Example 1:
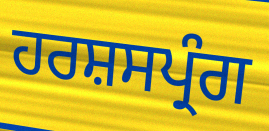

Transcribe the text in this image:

ਹਰਸ਼ਸਪ੍ਰੰਗ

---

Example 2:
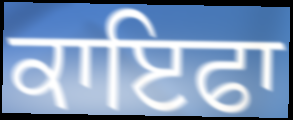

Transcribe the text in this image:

ਕਾਇਫਾ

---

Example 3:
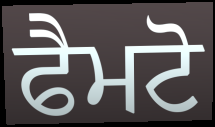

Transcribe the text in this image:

ਫੈਮਟੋ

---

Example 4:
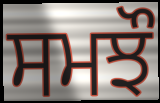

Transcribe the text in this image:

ਸਮਝੌ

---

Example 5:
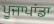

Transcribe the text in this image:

ਪੂਜਾਪਾਂਡਾ